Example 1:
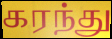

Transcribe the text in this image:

கரந்து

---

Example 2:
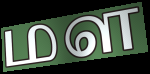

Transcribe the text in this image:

மள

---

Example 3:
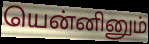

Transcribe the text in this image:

யென்னினும்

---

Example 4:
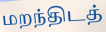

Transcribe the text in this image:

மறந்திடத்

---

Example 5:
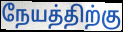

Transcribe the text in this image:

நேயத்திற்கு